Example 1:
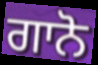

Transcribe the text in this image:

ਗਾਨੋ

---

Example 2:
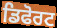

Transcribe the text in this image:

ਡਿਫੋਰਟ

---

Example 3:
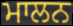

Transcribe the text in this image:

ਮਾਲਨ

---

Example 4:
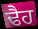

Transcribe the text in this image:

ਢੈਹ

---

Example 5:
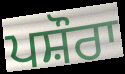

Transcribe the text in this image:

ਪਸ਼ੌਰਾ